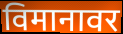
विमानावर